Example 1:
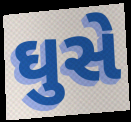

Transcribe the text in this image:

ઘુસે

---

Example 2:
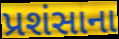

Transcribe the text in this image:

પ્રશંસાના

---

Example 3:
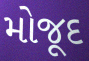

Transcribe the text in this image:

મોજૂદ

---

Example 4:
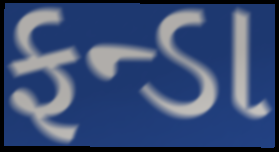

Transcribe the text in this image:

ફન્ડા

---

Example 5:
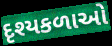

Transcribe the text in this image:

દૃશ્યકળાઓ